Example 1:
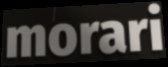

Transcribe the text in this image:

morari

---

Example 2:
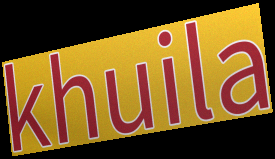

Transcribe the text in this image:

khuila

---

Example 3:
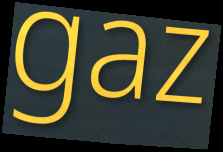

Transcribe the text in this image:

gaz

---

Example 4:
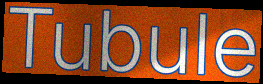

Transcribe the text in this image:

Tubule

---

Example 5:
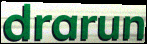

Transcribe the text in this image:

drarun